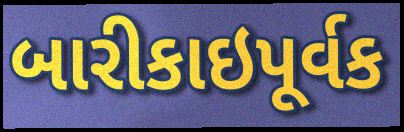
બારીકાઇપૂર્વક